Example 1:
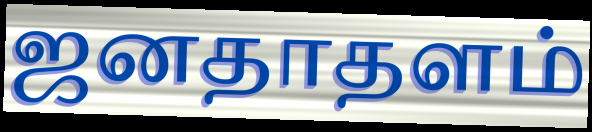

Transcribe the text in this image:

ஜனதாதளம்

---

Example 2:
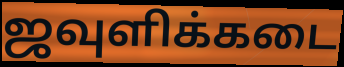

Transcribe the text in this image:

ஜவுளிக்கடை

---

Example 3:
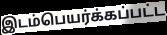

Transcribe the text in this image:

இடம்பெயர்க்கப்பட்ட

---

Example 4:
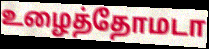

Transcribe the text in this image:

உழைத்தோமடா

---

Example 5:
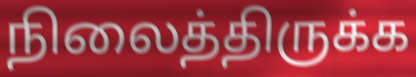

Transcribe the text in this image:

நிலைத்திருக்க